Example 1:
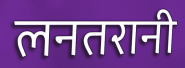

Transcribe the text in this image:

लनतरानी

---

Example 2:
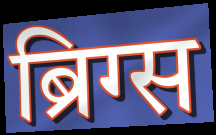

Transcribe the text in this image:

ब्रिग्स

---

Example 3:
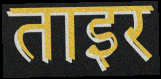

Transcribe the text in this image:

ताइर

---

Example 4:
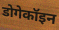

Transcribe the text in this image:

डोगेकॉइन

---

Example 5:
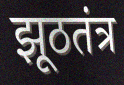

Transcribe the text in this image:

झूठतंत्र